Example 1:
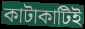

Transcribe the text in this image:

কাটাকাটিই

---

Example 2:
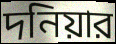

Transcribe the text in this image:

দনিয়ার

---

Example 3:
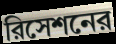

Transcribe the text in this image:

রিসেশনের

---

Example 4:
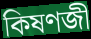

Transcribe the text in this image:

কিষণজী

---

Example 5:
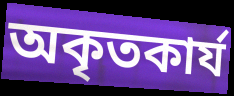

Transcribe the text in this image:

অকৃতকার্য